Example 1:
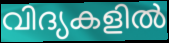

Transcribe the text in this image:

വിദ്യകളിൽ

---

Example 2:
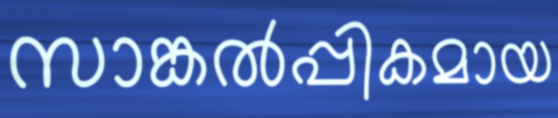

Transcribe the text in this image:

സാങ്കൽപ്പികമായ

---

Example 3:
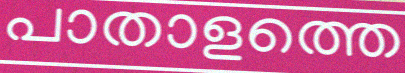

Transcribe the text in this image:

പാതാളത്തെ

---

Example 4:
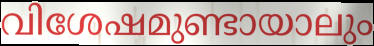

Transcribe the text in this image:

വിശേഷമുണ്ടായാലും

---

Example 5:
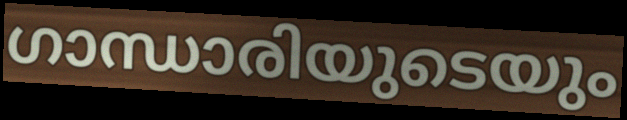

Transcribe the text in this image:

ഗാന്ധാരിയുടെയും